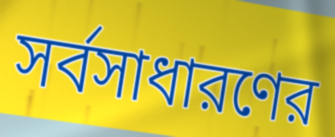
সর্বসাধারণের